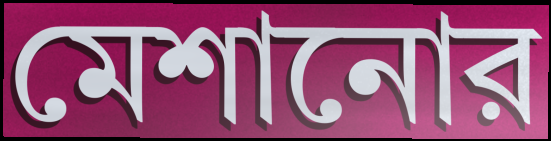
মেশানোর